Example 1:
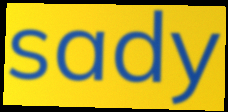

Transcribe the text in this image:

sady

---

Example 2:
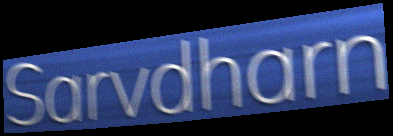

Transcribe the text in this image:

Sarvdharn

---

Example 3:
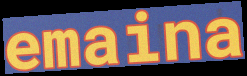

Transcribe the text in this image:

emaina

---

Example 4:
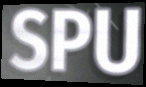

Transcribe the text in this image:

SPU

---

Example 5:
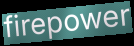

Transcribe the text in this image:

firepower